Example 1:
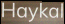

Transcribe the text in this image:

Haykal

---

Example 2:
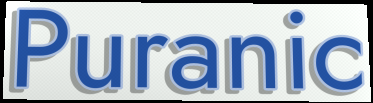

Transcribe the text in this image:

Puranic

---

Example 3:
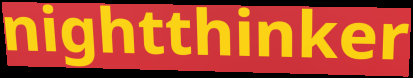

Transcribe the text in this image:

nightthinker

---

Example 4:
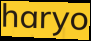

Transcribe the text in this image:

haryo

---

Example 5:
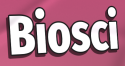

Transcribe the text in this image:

Biosci